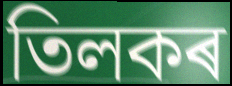
তিলকৰ